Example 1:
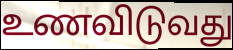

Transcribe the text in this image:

உணவிடுவது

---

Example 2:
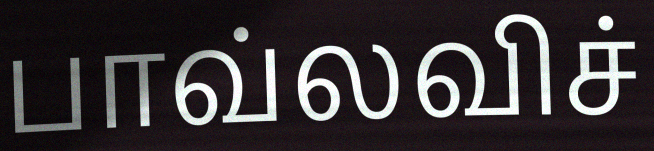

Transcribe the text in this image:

பாவ்லவிச்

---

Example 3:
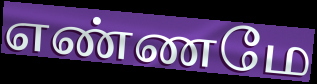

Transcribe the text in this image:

எண்ணமே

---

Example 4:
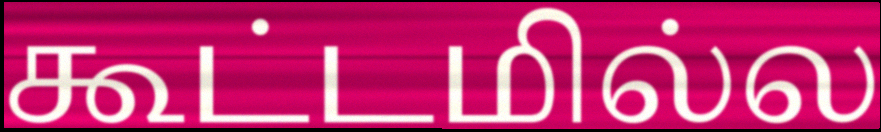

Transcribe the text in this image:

கூட்டமில்ல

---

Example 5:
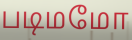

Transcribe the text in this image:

படிமமோ